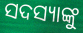
ସଦସ୍ୟାଙ୍କୁ